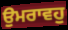
ਉਮਰਾਵਹੁ